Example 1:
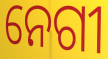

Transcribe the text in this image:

ନେଗୀ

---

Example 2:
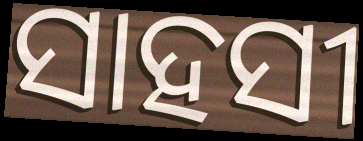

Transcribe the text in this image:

ସାହସୀ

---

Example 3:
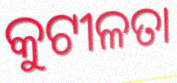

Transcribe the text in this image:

କୁଟୀଳତା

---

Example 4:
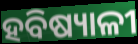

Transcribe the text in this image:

ହବିଷ୍ୟାଳୀ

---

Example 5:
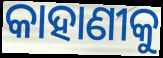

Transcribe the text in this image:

କାହାଣୀକୁ